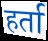
हर्ता